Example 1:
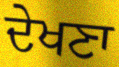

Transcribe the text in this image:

ਦੇਖਣਾ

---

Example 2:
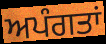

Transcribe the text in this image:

ਅਪੰਗਤਾਂ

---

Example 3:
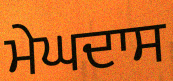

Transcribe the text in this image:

ਮੇਘਦਾਸ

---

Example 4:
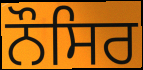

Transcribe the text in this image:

ਨੌਸਿਰ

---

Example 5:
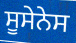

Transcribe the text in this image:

ਸੂਸੇਨੇਸ